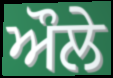
ਔਲੇ